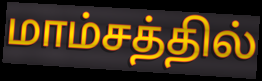
மாம்சத்தில்